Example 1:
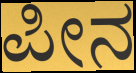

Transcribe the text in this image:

ಪೀನ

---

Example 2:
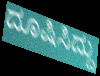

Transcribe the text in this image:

ದೂಷಿಸಿದ್ದು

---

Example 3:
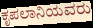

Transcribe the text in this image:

ಕೃಪಲಾನಿಯವರು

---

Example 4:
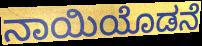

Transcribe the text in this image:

ನಾಯಿಯೊಡನೆ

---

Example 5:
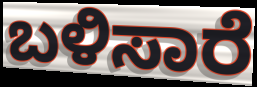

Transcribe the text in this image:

ಬಳಿಸಾರೆ